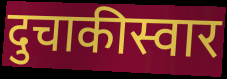
दुचाकीस्वार